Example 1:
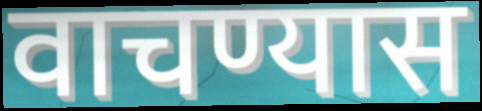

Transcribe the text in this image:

वाचण्यास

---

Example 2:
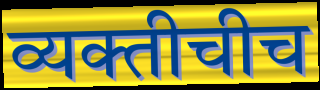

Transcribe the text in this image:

व्यक्तीचीच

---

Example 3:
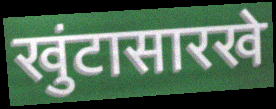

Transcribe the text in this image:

खुंटासारखे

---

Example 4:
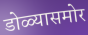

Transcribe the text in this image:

डोळ्यासमोर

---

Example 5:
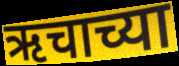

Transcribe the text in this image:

ऋचाच्या